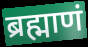
ब्रह्माणं